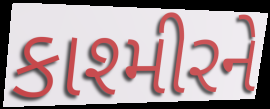
કાશ્મીરને